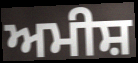
ਅਮੀਸ਼